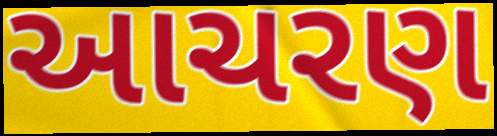
આચરણ